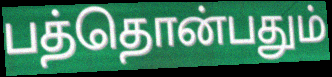
பத்தொன்பதும்